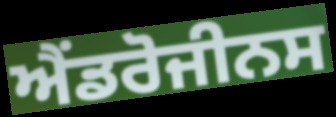
ਐਂਡਰੋਜੀਨਸ